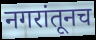
नगरांतूनच